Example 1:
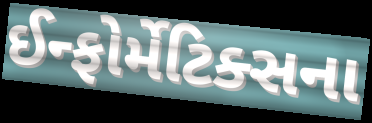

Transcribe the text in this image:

ઈન્ફોર્મેટિક્સના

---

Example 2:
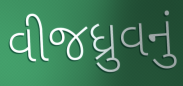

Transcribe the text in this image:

વીજધ્રુવનું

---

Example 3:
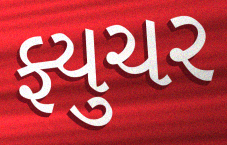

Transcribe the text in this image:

ફ્યુચર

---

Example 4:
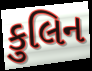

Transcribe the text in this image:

કુલિન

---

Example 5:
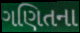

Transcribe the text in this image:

ગણિતના